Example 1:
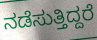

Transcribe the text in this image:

ನಡೆಸುತ್ತಿದ್ದರೆ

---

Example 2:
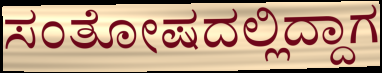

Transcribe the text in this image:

ಸಂತೋಷದಲ್ಲಿದ್ದಾಗ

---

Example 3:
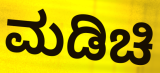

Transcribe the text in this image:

ಮಡಿಚಿ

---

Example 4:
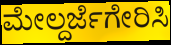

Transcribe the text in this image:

ಮೇಲ್ದರ್ಜೆಗೇರಿಸಿ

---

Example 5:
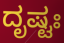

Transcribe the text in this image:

ದೃಷ್ಟಃ